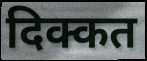
दिक्कत